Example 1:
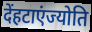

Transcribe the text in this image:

देंहटाएंज्योति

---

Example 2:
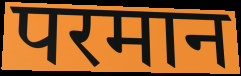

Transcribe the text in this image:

परमान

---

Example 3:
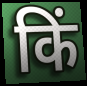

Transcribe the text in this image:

किं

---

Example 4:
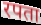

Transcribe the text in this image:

रपता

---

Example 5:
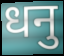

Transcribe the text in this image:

धनु